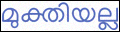
മുക്തിയല്ല